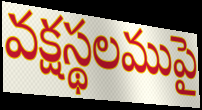
వక్షస్థలముపై